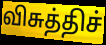
விசுத்திச்